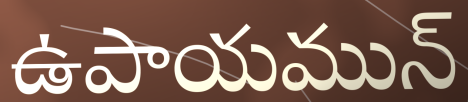
ఉపాయమున్